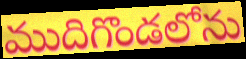
ముదిగొండలోను